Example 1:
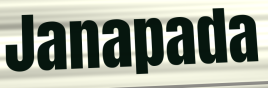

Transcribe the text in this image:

Janapada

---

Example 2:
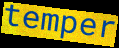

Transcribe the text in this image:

temper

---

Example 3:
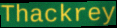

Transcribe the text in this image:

Thackrey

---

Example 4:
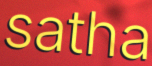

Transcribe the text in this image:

satha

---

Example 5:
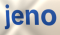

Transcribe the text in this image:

jeno